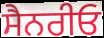
ਸੈਨਰੀਓ